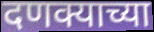
दणक्याच्या